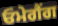
ਓਮੇਗੈਂਗ